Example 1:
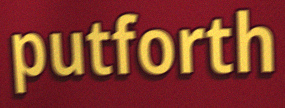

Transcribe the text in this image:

putforth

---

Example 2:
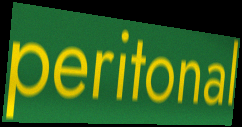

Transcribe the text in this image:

peritonal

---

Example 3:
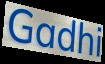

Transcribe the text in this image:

Gadhi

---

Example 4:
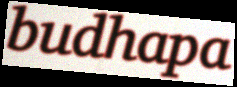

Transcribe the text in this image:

budhapa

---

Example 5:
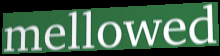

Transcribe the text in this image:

mellowed